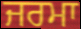
ਜਰਮਾ